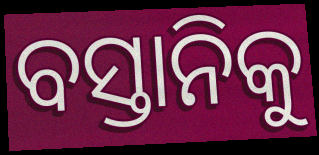
ବସ୍ତାନିକୁ